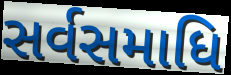
સર્વસમાધિ